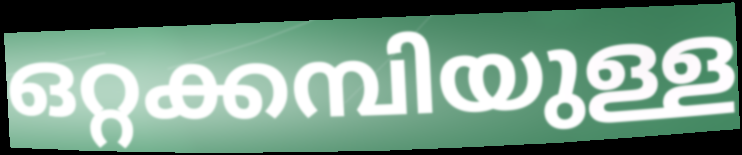
ഒറ്റക്കമ്പിയുള്ള